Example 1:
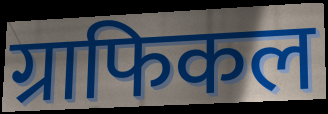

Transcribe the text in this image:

ग्राफिकल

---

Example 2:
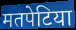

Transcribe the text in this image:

मतपेटिया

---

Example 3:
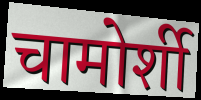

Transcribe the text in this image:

चामोर्शी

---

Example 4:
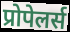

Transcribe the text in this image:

प्रोपेलर्स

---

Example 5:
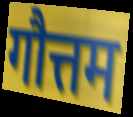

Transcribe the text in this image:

गौत्तम